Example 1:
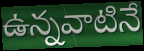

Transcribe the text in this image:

ఉన్నవాటినే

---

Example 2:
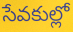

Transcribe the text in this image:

సేవకుల్లో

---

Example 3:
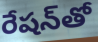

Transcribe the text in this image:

రేషన్‌తో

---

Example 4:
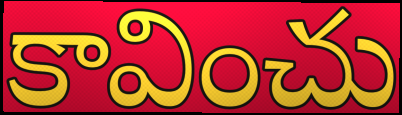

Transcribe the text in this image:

కావించు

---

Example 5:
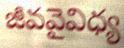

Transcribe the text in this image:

జీవవైవిధ్య